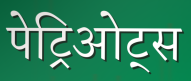
पेट्रिओट्स